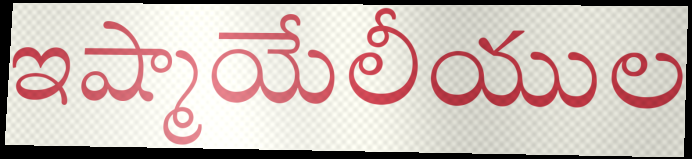
ఇష్మాయేలీయుల